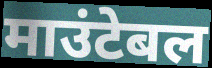
माउंटेबल